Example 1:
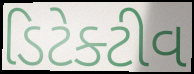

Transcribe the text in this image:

ડિટેક્ટીવ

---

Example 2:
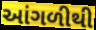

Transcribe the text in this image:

આંગળીથી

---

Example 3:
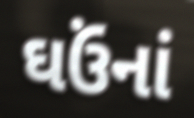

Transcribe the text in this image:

ઘઉંનાં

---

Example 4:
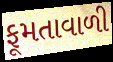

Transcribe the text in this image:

ફૂમતાવાળી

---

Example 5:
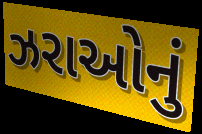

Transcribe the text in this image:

ઝરાઓનું